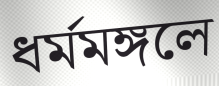
ধর্মমঙ্গলে